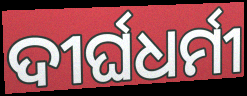
ଦୀର୍ଘଧର୍ମୀ